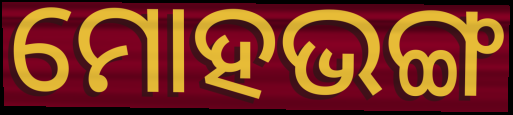
ମୋହଭଙ୍ଗ